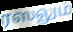
ரஸலும்